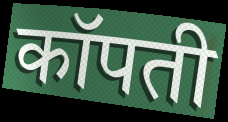
कॉपती